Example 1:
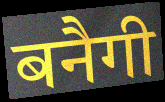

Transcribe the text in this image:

बनैगी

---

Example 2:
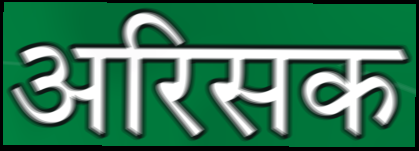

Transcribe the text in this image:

अरिसक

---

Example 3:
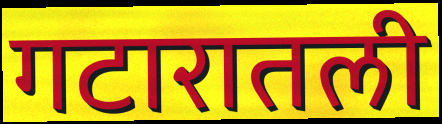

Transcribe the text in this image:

गटारातली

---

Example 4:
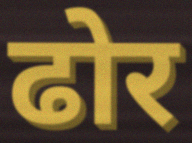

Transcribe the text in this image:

ढोर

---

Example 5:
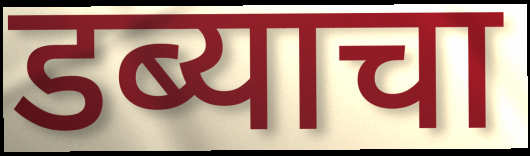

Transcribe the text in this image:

डब्याचा